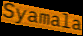
Syamala